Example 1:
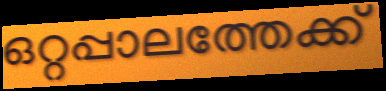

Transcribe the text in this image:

ഒറ്റപ്പാലത്തേക്ക്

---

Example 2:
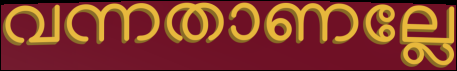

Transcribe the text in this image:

വന്നതാണല്ലേ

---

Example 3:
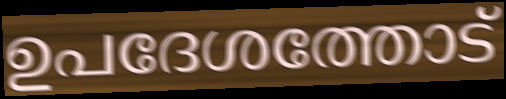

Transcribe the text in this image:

ഉപദേശത്തോട്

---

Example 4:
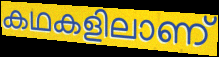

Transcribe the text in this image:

കഥകളിലാണ്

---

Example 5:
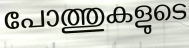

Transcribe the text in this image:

പോത്തുകളുടെ